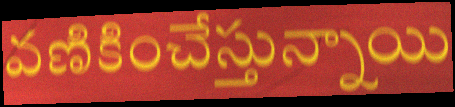
వణికించేస్తున్నాయి